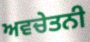
ਅਵਚੇਤਨੀ